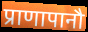
प्राणापानौ